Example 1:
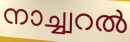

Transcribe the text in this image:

നാച്ച്വറൽ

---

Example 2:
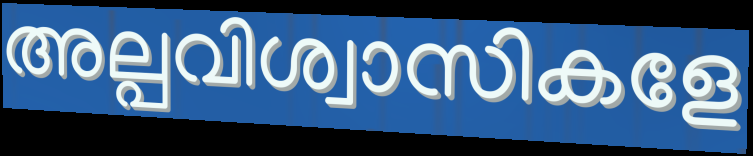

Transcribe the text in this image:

അല്പവിശ്വാസികളേ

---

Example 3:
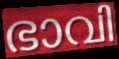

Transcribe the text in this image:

ഭാവി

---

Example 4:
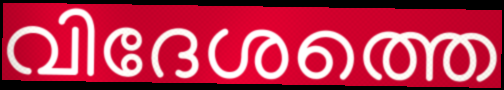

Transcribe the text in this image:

വിദേശത്തെ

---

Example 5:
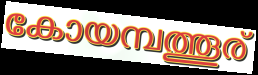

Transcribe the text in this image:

കോയമ്പത്തൂര്